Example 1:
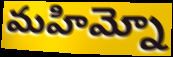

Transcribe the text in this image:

మహిమ్నో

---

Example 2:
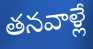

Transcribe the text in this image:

తనవాళ్లే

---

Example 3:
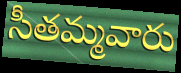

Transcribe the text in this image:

సీతమ్మవారు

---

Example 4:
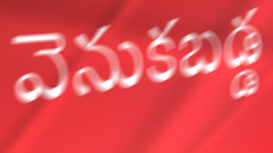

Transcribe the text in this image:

వెనుకబడ్డ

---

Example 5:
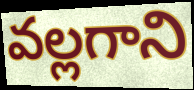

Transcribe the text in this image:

వల్లగాని